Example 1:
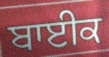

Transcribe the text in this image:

ਬਾਈਕ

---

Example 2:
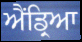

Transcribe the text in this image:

ਐਂਡ੍ਰਿਆ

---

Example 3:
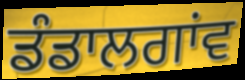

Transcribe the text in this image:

ਡੰਡਾਲਗਾਂਵ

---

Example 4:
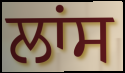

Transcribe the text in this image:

ਲਾਂਸ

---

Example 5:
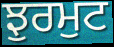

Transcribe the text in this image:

ਝੁਰਮੁਟ